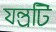
যন্ত্রটি